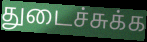
துடைச்சுக்க